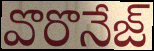
వొరొనేజ్